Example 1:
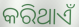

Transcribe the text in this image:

କରିଥାଏଁ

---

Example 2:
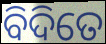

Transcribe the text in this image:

ବିଦିତେ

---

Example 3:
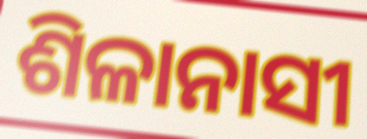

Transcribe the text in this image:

ଶିଳାନାସୀ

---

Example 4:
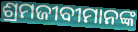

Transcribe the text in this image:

ଶ୍ରମଜୀବୀମାନଙ୍କ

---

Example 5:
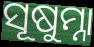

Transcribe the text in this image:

ସୂଷୁମ୍ନା